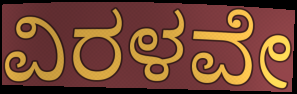
ವಿರಳವೇ